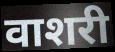
वाशरी